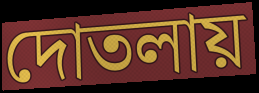
দোতলায়